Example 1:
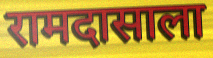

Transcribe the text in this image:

रामदासाला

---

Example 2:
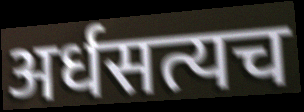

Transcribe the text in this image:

अर्धसत्यच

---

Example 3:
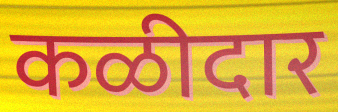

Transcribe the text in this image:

कळीदार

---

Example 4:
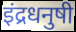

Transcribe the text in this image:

इंद्रधनुषी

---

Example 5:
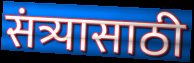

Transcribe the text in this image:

संत्र्यासाठी